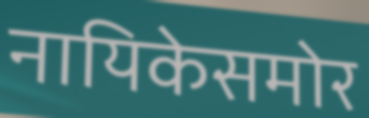
नायिकेसमोर